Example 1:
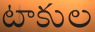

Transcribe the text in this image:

టాకుల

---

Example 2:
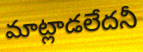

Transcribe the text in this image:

మాట్లాడలేదనీ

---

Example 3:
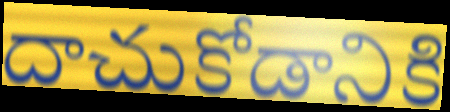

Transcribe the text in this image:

దాచుకోడానికి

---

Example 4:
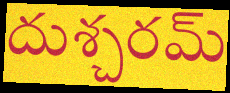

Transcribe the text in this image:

దుశ్చరమ్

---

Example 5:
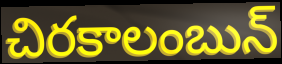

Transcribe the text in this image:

చిరకాలంబున్